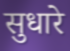
सुधारे